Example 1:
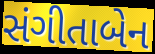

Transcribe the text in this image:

સંગીતાબેન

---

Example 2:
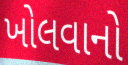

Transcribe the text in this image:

ખોલવાનો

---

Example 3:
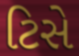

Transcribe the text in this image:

ટિસે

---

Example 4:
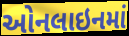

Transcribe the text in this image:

ઓનલાઇનમાં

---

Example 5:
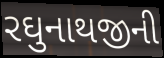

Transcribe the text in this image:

રઘુનાથજીની